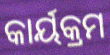
କାର୍ୟକ୍ରମ